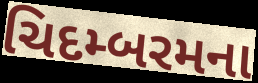
ચિદમ્બરમના